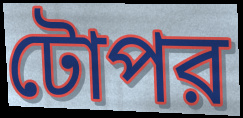
টোপর